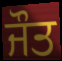
ਜੌਤ